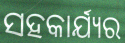
ସହକାର୍ଯ୍ୟର